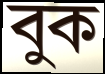
বুক